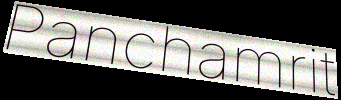
Panchamrit